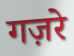
गज़रे